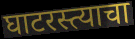
घाटरस्त्याचा